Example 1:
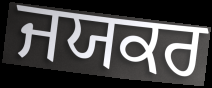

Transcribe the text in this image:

ਜਯਕਰ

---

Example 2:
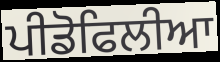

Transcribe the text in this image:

ਪੀਡੋਫਿਲੀਆ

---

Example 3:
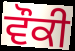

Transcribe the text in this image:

ਵੌਕੀ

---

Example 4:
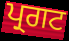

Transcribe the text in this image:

ਪ੍ਰਗਟ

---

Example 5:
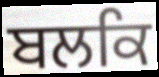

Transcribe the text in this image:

ਬਲਕਿ